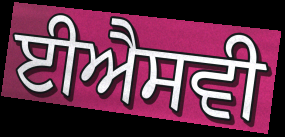
ਈਐਸਵੀ